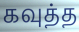
கவுத்த